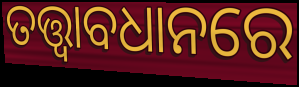
ତତ୍ତ୍ୱାବଧାନରେ